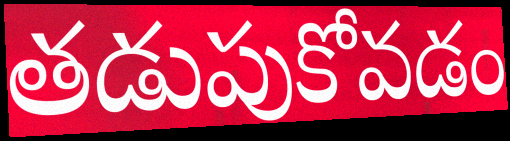
తడుపుకోవడం